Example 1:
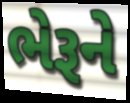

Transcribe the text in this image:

ભેરૂને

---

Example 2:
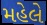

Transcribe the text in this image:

મહેલે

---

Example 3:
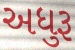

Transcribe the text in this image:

અધુરૂ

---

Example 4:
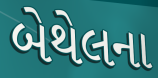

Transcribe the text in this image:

બેથેલના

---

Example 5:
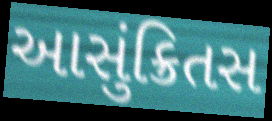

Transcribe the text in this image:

આસુંક્રિતસ